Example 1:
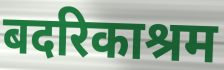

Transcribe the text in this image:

बदरिकाश्रम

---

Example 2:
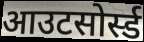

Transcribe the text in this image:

आउटसोर्स्ड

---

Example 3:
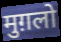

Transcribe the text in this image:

मुग़लो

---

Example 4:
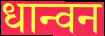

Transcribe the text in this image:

धान्वन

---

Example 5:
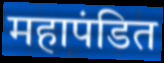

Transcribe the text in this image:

महापंडित